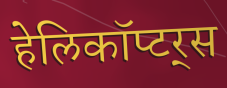
हेलिकॉप्टर्स